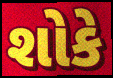
શોકે